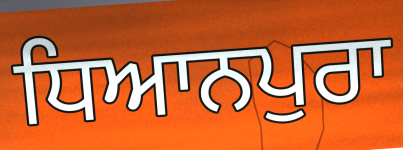
ਧਿਆਨਪੁਰਾ